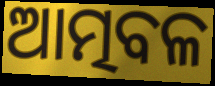
ଆତ୍ମବଳ